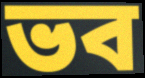
ভব